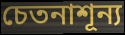
চেতনাশূন্য